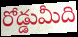
రోడ్డుమీది